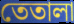
তেতালা